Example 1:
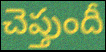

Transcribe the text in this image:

చెప్తుందీ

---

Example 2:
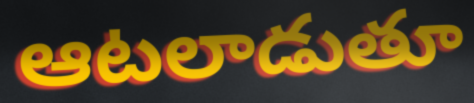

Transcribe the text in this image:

ఆటలాడుతూ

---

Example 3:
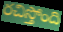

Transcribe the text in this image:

రచిస్తోంది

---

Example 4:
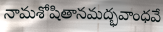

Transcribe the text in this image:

నామశోషితానమద్భవాంధవే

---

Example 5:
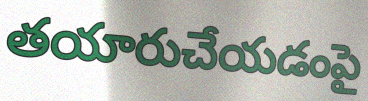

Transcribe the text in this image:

తయారుచేయడంపై